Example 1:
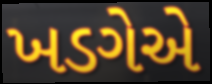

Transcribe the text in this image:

ખડગેએ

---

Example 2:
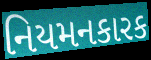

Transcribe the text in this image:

નિયમનકારક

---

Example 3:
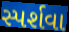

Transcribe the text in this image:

સ્પર્શવા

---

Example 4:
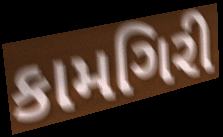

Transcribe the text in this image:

કામગિરી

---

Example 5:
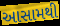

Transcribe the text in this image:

આસામથી